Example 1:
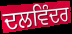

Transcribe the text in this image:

ਦਲਵਿੰਦਰ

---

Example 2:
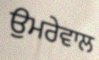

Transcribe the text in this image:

ਉਮਰੇਵਾਲ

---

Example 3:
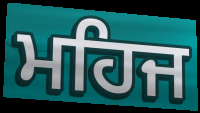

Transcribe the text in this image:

ਮਹਿਜ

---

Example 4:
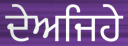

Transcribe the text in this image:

ਦੇਅਜਿਹੇ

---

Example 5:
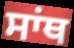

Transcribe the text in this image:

ਸਾਂਥ